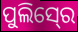
ପୁଲିସ୍‍ରେ